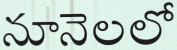
నూనెలలో